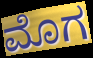
ಮೊಗ